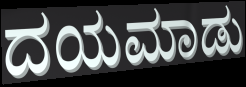
ದಯಮಾಡು